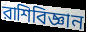
রাশিবিজ্ঞান